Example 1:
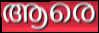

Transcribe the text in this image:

ആരെ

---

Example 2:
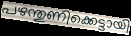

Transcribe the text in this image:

പഴന്തുണിക്കെട്ടായി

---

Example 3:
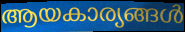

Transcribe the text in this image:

ആയകാര്യങ്ങൾ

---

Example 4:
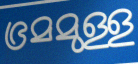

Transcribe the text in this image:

ഭ്രമമുള്ള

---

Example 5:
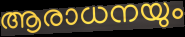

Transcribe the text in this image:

ആരാധനയും